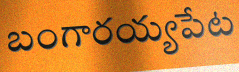
బంగారయ్యపేట